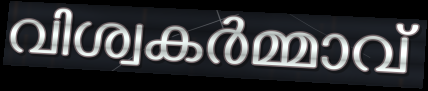
വിശ്വകർമ്മാവ്